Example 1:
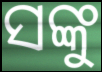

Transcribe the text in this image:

ସଙ୍କୁ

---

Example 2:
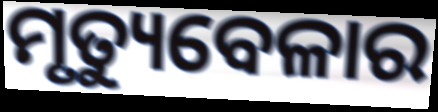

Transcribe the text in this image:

ମୃତ୍ୟୁବେଳାର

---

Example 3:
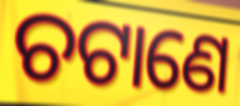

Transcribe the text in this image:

ଚଟାଣେ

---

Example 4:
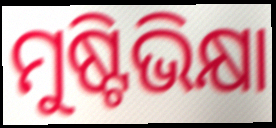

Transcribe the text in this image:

ମୁଷ୍ଟିଭିକ୍ଷା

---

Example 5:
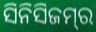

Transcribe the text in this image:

ସିନିସିଜମ୍‌ର